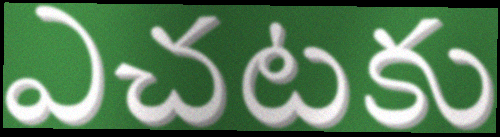
ఎచటకు